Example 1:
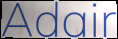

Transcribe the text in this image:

Adair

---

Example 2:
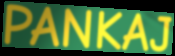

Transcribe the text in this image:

PANKAJ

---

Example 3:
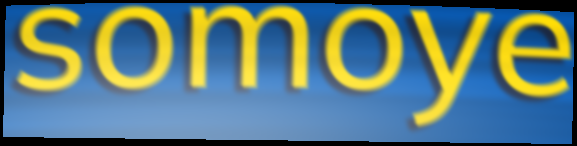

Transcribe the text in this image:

somoye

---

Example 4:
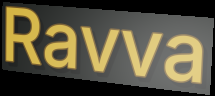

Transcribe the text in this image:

Ravva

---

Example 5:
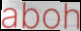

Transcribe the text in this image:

aboh